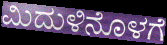
ಮಿದುಳಿನೊಳಗೆ